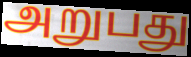
அறுபது